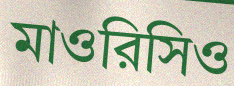
মাওরিসিও